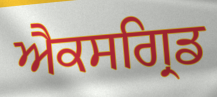
ਐਕਸਗ੍ਰਿਡ